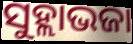
ସୁହ୍ଲାଭଜା